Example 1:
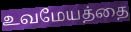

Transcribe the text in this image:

உவமேயத்தை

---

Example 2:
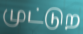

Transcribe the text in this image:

முட்டுற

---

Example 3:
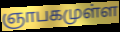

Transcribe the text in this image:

ஞாபகமுள்ள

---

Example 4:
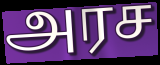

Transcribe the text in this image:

அரச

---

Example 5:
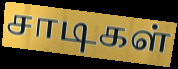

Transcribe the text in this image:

சாடிகள்